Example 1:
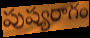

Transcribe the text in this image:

పుష్యరాగం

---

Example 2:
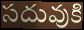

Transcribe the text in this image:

సదువుకి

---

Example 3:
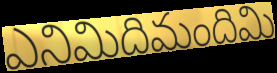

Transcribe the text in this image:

ఎనిమిదిమందిమి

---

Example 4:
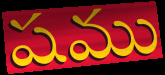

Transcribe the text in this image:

షము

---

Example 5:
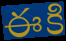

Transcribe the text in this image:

ఈకి